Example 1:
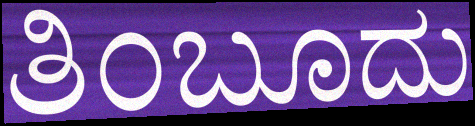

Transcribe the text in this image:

ತಿಂಬೂದು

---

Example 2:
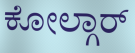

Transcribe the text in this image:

ಕೋಲ್ಗಾರ್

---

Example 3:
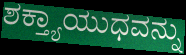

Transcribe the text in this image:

ಶಕ್ತ್ಯಾಯುಧವನ್ನು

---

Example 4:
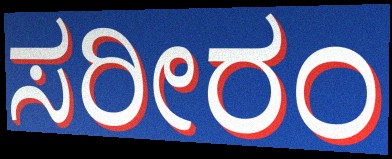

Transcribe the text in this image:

ಸರೀರಂ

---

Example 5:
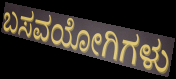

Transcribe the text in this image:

ಬಸವಯೋಗಿಗಳು